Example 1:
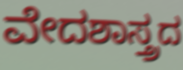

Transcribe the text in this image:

ವೇದಶಾಸ್ತ್ರದ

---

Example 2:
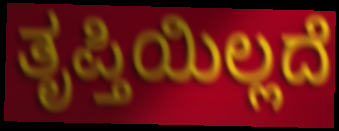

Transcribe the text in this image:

ತೃಪ್ತಿಯಿಲ್ಲದೆ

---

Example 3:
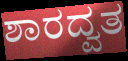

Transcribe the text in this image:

ಶಾರದ್ವತ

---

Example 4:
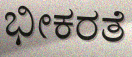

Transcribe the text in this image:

ಭೀಕರತೆ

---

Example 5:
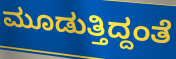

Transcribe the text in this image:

ಮೂಡುತ್ತಿದ್ದಂತೆ